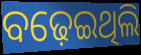
ବଢ଼େଇଥିଲି